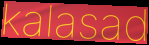
kalasad